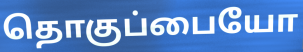
தொகுப்பையோ